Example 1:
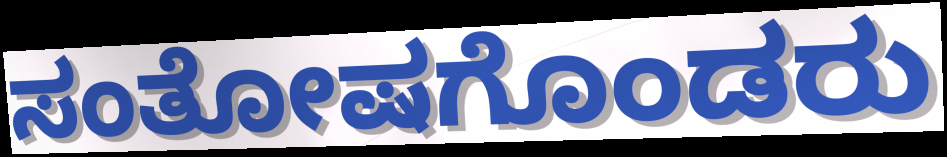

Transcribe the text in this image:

ಸಂತೋಷಗೊಂಡರು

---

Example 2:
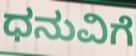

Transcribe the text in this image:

ಧನುವಿಗೆ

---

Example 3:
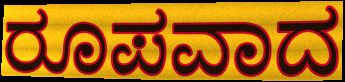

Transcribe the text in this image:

ರೂಪವಾದ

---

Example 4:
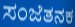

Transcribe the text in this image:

ಸಂಜೆತನಕ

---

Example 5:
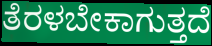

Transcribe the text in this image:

ತೆರಳಬೇಕಾಗುತ್ತದೆ